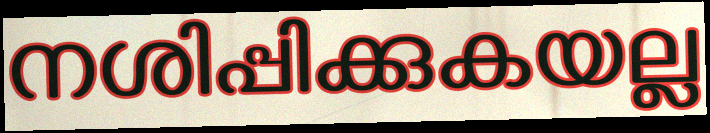
നശിപ്പിക്കുകയല്ല